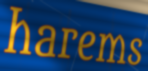
harems